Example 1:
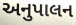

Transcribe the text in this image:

અનુપાલન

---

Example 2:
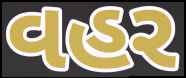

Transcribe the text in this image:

વહર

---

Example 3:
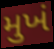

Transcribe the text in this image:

મુખં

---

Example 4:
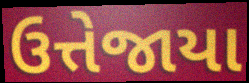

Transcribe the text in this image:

ઉત્તેજાયા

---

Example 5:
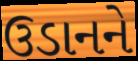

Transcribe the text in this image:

ઉડાનને